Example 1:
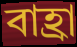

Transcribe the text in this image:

বাহ্রা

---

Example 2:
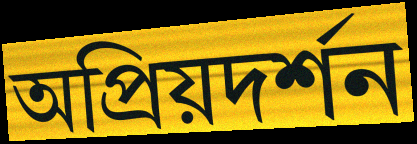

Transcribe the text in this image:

অপ্রিয়দর্শন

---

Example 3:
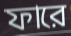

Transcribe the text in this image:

ফারে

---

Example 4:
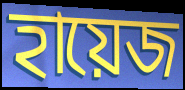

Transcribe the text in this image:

হায়েজ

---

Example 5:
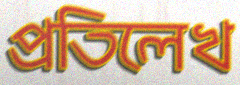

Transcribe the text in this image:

প্রতিলেখ